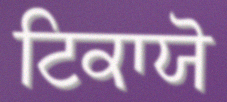
ਟਿਕਾਯੋ